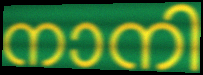
നാനി